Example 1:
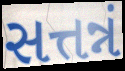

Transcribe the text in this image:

સત્તન્નં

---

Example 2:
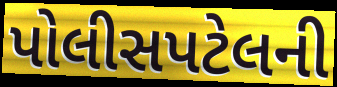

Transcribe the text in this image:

પોલીસપટેલની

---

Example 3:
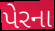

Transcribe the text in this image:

પેરના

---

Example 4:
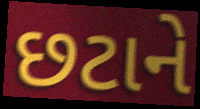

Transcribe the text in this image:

છટાને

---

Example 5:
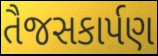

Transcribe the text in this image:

તૈજસકાર્પણ